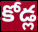
కోడ్ల